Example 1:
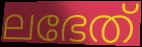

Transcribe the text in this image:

ലഭേത്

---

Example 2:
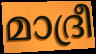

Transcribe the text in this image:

മാദ്രീ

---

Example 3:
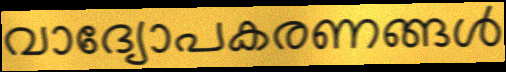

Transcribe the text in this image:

വാദ്യോപകരണങ്ങൾ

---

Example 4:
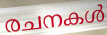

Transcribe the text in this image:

രചനകൾ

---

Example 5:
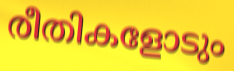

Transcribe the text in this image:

രീതികളോടും